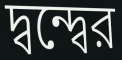
দ্বন্দ্বের